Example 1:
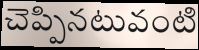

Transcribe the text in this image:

చెప్పినటువంటి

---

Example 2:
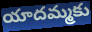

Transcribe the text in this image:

యాదమ్మకు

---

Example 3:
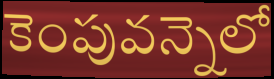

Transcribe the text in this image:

కెంపువన్నెలో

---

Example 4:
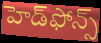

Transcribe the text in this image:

హెడ్‌ఫోన్స్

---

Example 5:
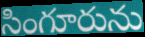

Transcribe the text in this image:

సింగూరును